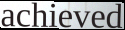
achieved